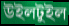
উইলটুইল